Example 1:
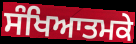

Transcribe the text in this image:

ਸੰਖਿਆਤਮਕੇ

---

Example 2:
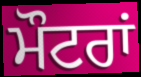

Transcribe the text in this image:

ਮੌਟਰਾਂ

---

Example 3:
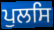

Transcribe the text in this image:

ਪੁਲਸਿ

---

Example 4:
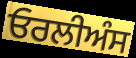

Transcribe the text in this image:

ਓਰਲੀਅੰਸ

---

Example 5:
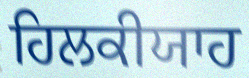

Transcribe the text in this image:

ਹਿਲਕੀਯਾਹ